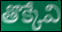
తొక్కేవి